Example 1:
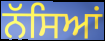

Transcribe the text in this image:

ਨੱਸਿਆਂ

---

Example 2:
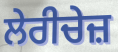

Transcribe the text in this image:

ਲੇਰੀਚੇਜ਼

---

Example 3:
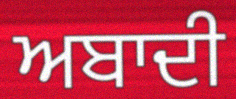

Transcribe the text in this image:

ਅਬਾਦੀ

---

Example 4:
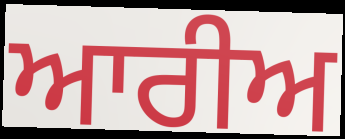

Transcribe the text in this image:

ਆਰੀਅ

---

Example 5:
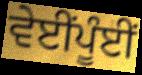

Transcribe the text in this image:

ਵੇਈਂਪੂੰਈਂ